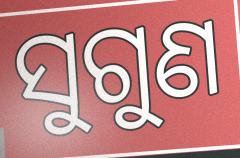
ସୁଗୁଣ